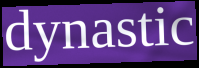
dynastic